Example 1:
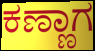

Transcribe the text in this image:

ಕಣ್ಣಾಗ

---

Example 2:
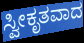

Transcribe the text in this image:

ಸ್ವೀಕೃತವಾದ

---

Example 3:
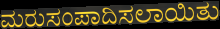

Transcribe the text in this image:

ಮರುಸಂಪಾದಿಸಲಾಯಿತು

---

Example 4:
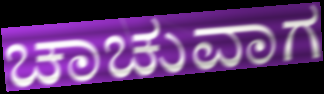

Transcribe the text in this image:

ಚಾಚುವಾಗ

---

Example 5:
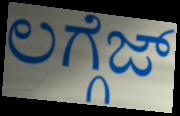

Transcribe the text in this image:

ಲಗ್ಗೆಜ್